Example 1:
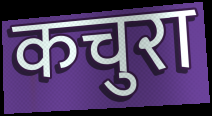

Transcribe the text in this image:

कचुरा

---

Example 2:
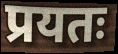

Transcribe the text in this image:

प्रयतः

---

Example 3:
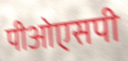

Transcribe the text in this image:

पीओएसपी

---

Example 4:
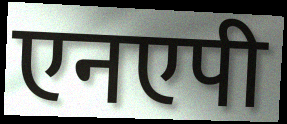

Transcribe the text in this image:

एनएपी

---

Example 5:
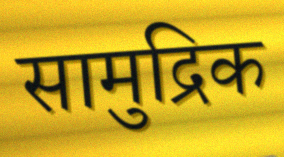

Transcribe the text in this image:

सामुद्रिक